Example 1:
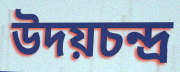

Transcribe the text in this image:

উদয়চন্দ্র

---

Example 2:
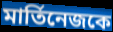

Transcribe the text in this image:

মার্তিনেজকে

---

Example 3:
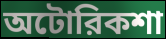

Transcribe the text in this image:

অটোরিকশা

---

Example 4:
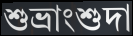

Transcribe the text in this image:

শুভ্রাংশুদা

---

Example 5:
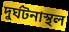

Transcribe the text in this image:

দুর্ঘটনাস্থল